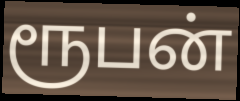
ரூபன்